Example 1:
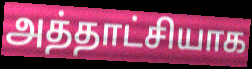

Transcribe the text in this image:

அத்தாட்சியாக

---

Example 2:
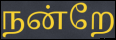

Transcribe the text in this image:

நன்றே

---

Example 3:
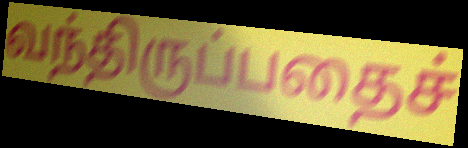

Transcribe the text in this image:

வந்திருப்பதைச்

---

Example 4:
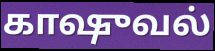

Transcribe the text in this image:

காஷுவல்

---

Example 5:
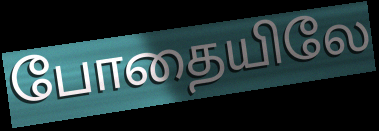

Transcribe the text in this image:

போதையிலே